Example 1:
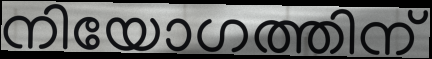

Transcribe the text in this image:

നിയോഗത്തിന്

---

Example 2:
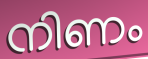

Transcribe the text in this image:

നിണം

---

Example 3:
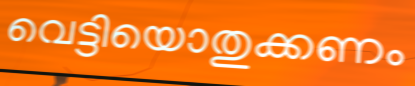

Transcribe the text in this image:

വെട്ടിയൊതുക്കണം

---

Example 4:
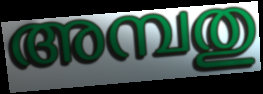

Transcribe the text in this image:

അമ്പതു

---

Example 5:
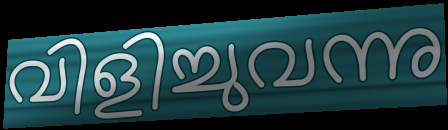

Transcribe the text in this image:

വിളിച്ചുവന്നു